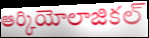
ఆర్కియోలాజికల్